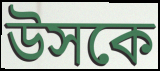
উসকে